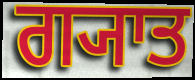
ਗ੍ਯਾਤ